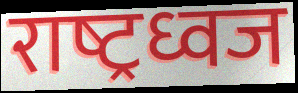
राष्ट्रध्वज